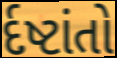
ર્દષ્ટાંતો